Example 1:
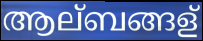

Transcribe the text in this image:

ആല്ബങ്ങള്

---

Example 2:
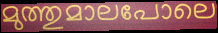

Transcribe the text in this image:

മുത്തുമാലപോലെ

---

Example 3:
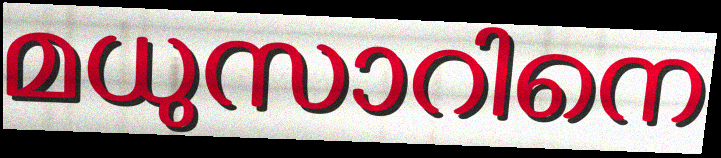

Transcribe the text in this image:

മധുസാറിനെ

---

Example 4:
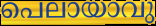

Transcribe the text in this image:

പെലായാവു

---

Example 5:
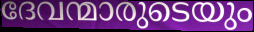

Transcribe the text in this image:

ദേവന്മാരുടെയും